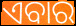
ଏବାର